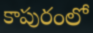
కాపురంలో